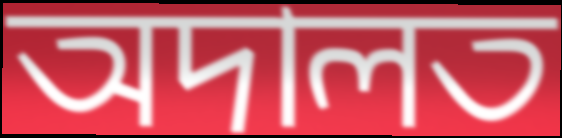
অদালত